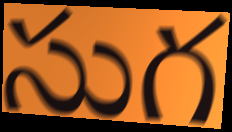
సుగ